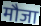
मौजा